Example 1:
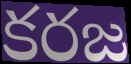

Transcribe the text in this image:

కరజ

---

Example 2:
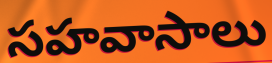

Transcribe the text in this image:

సహవాసాలు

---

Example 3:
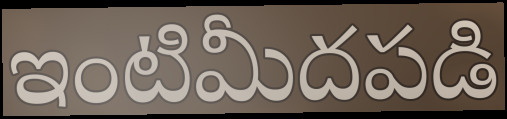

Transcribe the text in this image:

ఇంటిమీదపడి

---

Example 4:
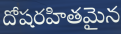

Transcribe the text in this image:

దోషరహితమైన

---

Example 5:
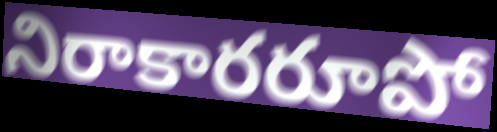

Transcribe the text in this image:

నిరాకారరూపో